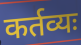
कर्तव्यः